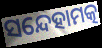
ସନ୍ଦେହାମତ୍କ